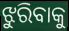
ଝୁରିବାକୁ